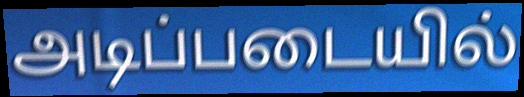
அடிப்படையில்